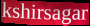
kshirsagar